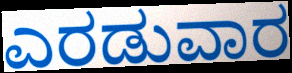
ಎರಡುವಾರ